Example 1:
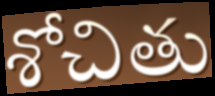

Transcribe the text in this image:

శోచితు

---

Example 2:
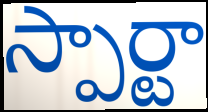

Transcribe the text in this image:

స్పార్టా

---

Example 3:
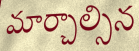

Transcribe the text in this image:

మార్చాల్సిన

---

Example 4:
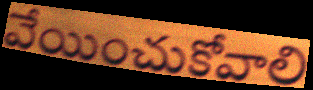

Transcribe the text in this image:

వేయించుకోవాలి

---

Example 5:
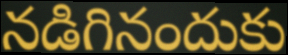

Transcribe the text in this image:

నడిగినందుకు